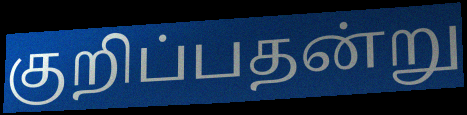
குறிப்பதன்று